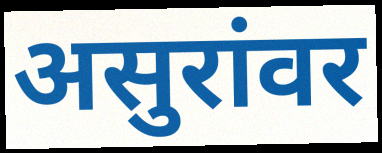
असुरांवर